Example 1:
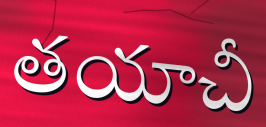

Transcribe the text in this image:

తయాచీ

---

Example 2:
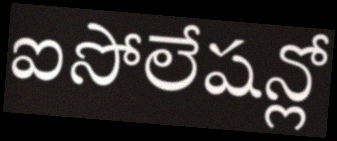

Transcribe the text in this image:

ఐసోలేషన్లో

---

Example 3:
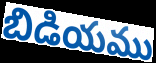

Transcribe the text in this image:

బిడియము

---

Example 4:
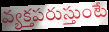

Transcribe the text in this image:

వ్యక్తపరుస్తుంటే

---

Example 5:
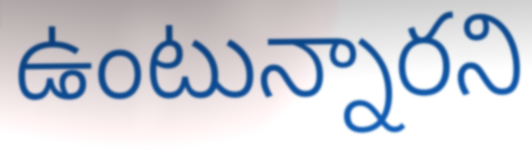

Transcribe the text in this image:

ఉంటున్నారని